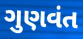
ગુણવંત